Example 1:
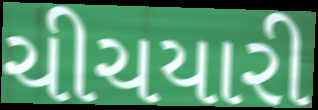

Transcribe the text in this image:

ચીચયારી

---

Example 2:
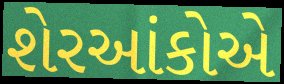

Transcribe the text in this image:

શેરઆંકોએ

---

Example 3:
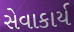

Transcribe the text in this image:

સેવાકાર્ય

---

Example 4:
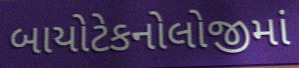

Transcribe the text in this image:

બાયોટેકનોલોજીમાં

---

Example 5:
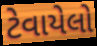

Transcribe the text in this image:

ટેવાયેલો